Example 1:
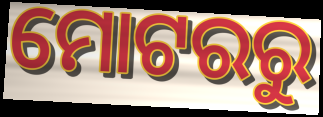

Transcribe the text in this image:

ମୋଟରରୁ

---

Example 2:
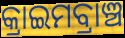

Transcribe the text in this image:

କ୍ରାଇମବ୍ରାଞ୍ଚ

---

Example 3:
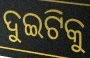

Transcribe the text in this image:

ଦୁଇଟିକୁ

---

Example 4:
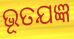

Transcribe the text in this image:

ଭୂତଯଜ୍ଞ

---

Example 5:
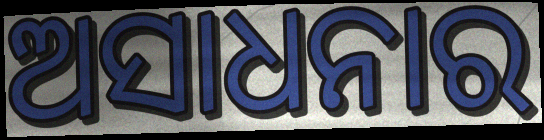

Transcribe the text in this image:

ଅସାଧନାର